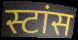
स्टांस